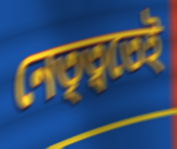
নেতৃত্বতেই